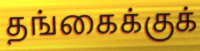
தங்கைக்குக்